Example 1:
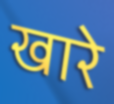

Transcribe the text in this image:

खारे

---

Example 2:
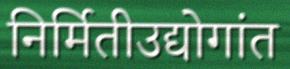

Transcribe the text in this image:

निर्मितीउद्योगांत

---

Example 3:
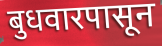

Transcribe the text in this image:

बुधवारपासून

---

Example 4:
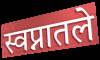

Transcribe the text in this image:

स्वप्नातले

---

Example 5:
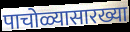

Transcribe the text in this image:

पाचोळ्यासारख्या